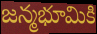
జన్మభూమికి